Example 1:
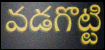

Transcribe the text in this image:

వడగొట్టి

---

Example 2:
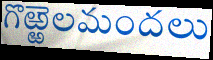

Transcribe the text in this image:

గొఱ్ఱెలమందలు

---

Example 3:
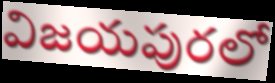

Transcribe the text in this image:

విజయపురలో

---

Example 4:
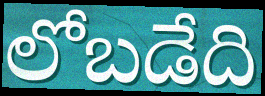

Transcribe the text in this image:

లోబడేది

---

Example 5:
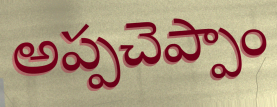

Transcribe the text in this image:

అప్పచెప్పాం